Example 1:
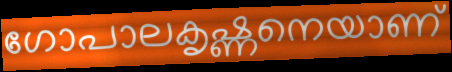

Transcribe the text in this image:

ഗോപാലകൃഷ്ണനെയാണ്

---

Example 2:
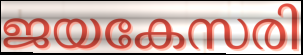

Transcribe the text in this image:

ജയകേസരി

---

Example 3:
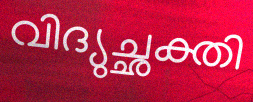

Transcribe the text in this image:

വിദ്യുച്ഛക്തി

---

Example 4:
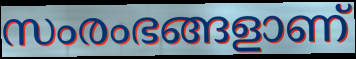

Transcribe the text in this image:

സംരംഭങ്ങളാണ്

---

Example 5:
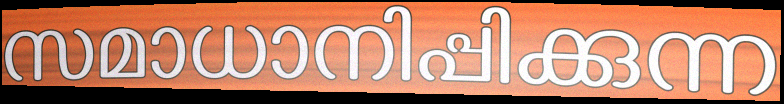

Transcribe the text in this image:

സമാധാനിപ്പിക്കുന്ന